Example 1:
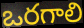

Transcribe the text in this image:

ఒరగాలి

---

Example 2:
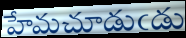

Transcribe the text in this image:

హేమచూడుఁడు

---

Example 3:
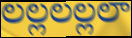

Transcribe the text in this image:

లల్లలల్లలా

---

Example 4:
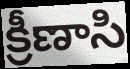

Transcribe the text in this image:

క్రీణాసి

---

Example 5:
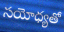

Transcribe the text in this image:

సయోధ్యతో